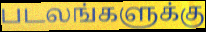
படலங்களுக்கு